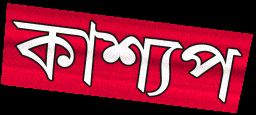
কাশ্যপ